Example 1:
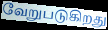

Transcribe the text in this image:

வேறுபடுகிறது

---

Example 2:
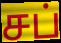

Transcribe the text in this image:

சப்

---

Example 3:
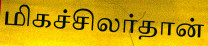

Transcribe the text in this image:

மிகச்சிலர்தான்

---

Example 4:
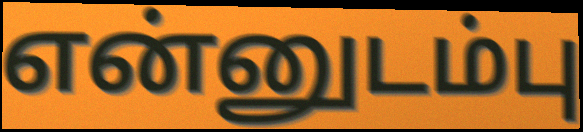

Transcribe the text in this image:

என்னுடம்பு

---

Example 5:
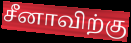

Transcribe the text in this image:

சீனாவிற்கு